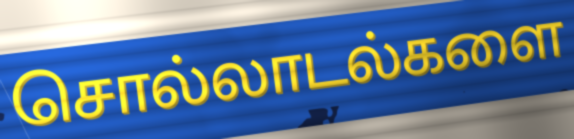
சொல்லாடல்களை